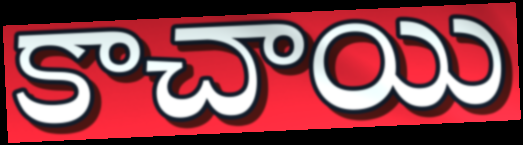
కాచాయి